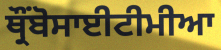
ਥ੍ਰੌਂਬੋਸਾਈਟੀਮੀਆ